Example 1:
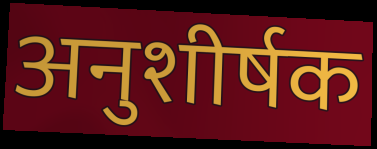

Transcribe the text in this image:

अनुशीर्षक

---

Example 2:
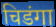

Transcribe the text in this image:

चिडंगा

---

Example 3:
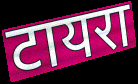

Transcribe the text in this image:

टायरा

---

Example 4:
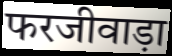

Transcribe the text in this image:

फरजीवाड़ा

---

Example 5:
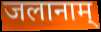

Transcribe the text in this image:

जलानाम्